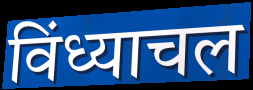
विंध्याचल